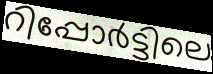
റിപ്പോർട്ടിലെ